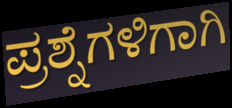
ಪ್ರಶ್ನೆಗಳಿಗಾಗಿ